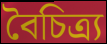
বৈচিত্ৰ্য